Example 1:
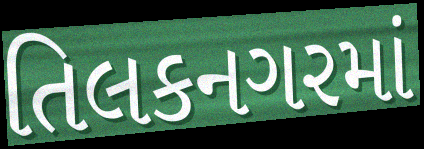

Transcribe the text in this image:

તિલકનગરમાં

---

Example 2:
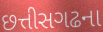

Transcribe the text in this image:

છત્તીસગઢના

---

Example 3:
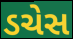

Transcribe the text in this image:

ડચેસ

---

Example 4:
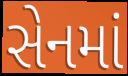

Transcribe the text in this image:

સેનમાં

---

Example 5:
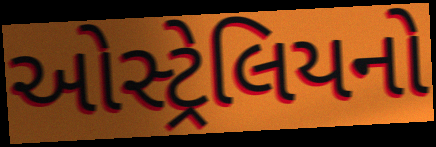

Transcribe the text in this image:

ઓસ્ટ્રેલિયનો